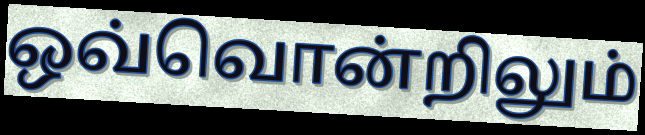
ஒவ்வொன்றிலும்